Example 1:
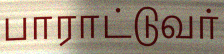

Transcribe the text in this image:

பாராட்டுவர்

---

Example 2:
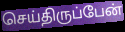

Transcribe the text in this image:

செய்திருப்பேன்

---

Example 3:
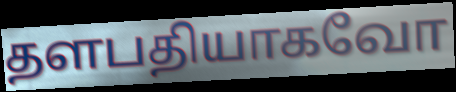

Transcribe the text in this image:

தளபதியாகவோ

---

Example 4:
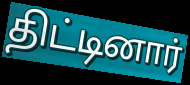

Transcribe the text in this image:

திட்டினார்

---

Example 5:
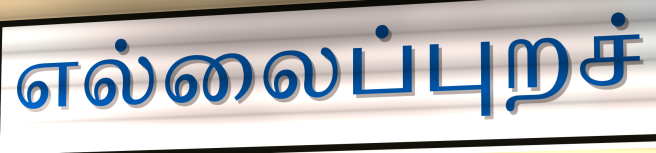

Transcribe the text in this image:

எல்லைப்புறச்